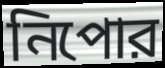
নিপোর